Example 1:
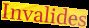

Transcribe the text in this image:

Invalides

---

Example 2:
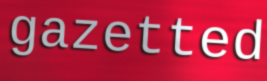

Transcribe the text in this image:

gazetted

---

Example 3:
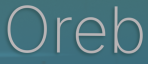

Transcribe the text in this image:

Oreb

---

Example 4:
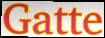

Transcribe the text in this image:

Gatte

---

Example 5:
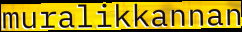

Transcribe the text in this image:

muralikkannan